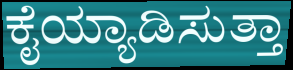
ಕೈಯ್ಯಾಡಿಸುತ್ತಾ